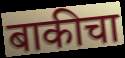
बाकीचा